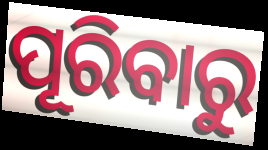
ପୂରିବାରୁ